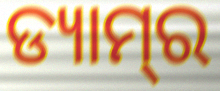
ଡ୍ୟାମ୍‍ର